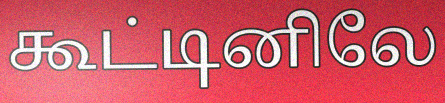
கூட்டினிலே